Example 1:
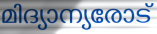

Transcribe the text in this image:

മിദ്യാന്യരോട്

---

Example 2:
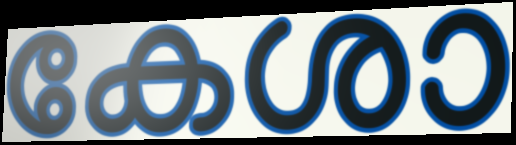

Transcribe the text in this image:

കേശാ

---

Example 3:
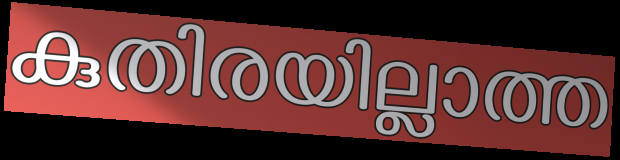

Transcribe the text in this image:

കുതിരയില്ലാത്ത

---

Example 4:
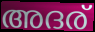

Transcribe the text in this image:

അദര്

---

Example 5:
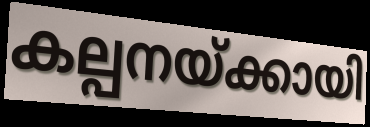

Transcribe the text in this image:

കല്പനയ്ക്കായി